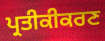
ਪ੍ਰਤੀਕੀਕਰਣ